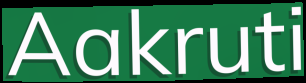
Aakruti